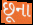
છૂના